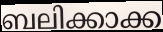
ബലിക്കാക്ക